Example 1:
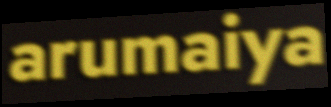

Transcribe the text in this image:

arumaiya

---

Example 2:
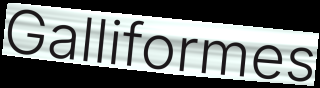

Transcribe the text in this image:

Galliformes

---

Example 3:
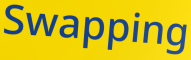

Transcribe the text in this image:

Swapping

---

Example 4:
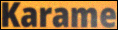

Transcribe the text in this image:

Karame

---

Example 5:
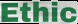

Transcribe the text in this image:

Ethic